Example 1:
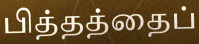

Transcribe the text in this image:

பித்தத்தைப்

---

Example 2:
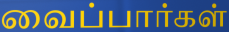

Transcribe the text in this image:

வைப்பார்கள்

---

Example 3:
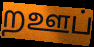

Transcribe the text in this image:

றஊப்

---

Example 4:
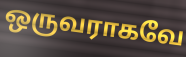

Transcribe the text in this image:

ஒருவராகவே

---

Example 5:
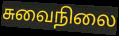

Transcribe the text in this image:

சுவைநிலை